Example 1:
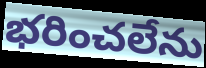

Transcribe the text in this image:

భరించలేను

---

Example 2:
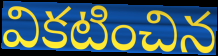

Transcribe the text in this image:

వికటించిన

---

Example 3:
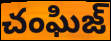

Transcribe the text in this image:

చంఘిజ్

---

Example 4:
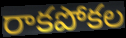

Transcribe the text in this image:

రాకపోకల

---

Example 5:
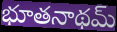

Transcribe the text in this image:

భూతనాథమ్